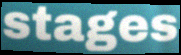
stages